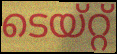
ടെയ്റ്റ്